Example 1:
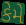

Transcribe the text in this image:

કેમે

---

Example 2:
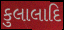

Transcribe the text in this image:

કુલાલાદિ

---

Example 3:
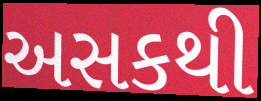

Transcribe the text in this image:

અસકથી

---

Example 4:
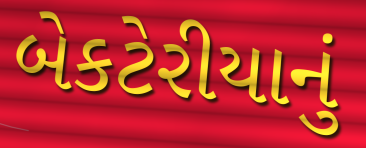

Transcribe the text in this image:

બેકટેરીયાનું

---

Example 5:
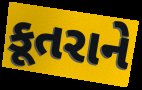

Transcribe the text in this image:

કૂતરાને